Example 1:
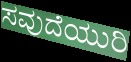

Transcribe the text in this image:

ಸವುದೆಯುರಿ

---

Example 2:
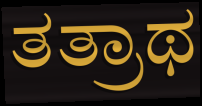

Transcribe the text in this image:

ತತ್ರಾಥ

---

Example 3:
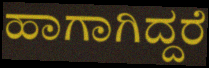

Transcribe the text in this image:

ಹಾಗಾಗಿದ್ದರೆ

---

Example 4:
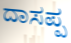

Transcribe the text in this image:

ದಾಸಪ್ಪ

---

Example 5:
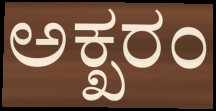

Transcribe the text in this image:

ಅಕ್ಖರಂ